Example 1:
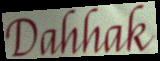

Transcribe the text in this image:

Dahhak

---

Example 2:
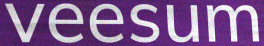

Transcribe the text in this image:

veesum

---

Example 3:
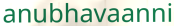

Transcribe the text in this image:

anubhavaanni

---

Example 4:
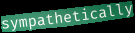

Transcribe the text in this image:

sympathetically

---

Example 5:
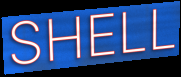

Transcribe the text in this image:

SHELL